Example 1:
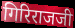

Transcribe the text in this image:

गिरिराजजी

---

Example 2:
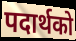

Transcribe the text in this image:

पदार्थको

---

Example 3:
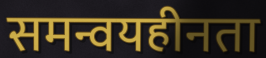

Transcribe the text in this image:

समन्वयहीनता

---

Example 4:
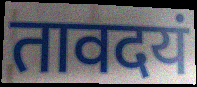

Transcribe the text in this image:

तावदयं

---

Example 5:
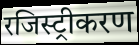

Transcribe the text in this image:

रजिस्‍ट्रीकरण